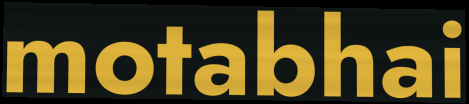
motabhai